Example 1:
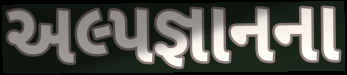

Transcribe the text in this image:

અલ્પજ્ઞાનના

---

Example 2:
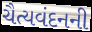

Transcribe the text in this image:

ચૈત્યવંદનની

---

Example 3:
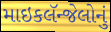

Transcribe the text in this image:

માઇકલૅન્જેલોનું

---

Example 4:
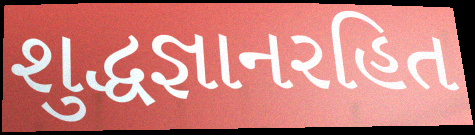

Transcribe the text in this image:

શુદ્ધજ્ઞાનરહિત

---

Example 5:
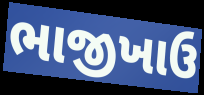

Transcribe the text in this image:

ભાજીખાઉ